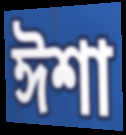
ঈশা